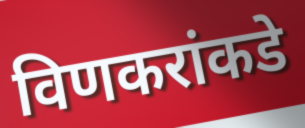
विणकरांकडे